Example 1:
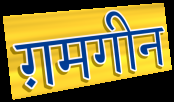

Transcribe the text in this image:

ग़मगीन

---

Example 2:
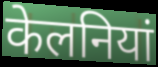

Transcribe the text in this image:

केलनियां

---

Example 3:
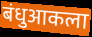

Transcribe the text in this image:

बंधुआकला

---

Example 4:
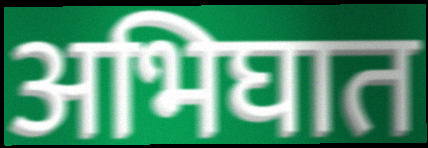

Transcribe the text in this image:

अभिघात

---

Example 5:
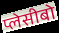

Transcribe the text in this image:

प्लेसीबो